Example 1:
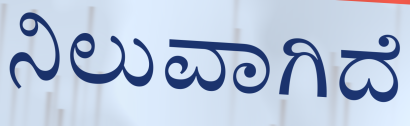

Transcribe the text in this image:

ನಿಲುವಾಗಿದೆ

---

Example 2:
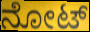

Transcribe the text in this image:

ನೋಟ್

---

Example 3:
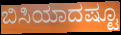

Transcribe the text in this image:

ಬಿಸಿಯಾದಷ್ಟೂ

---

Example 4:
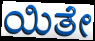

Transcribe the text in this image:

ಯಿತೇ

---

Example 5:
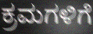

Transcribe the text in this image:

ಕ್ರಮಗಳಿಗೆ